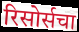
रिसोर्सचा